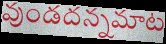
వుండదన్నమాట